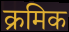
क्रमिक